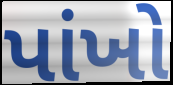
પાંખો